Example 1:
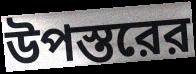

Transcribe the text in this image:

উপস্তরের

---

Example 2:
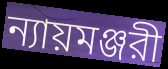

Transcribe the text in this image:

ন্যায়মঞ্জরী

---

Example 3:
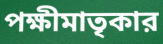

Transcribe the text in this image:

পক্ষীমাতৃকার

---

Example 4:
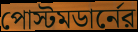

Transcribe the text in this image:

পোস্টমডার্নের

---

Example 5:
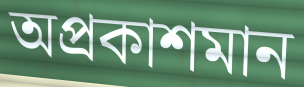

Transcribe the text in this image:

অপ্রকাশমান